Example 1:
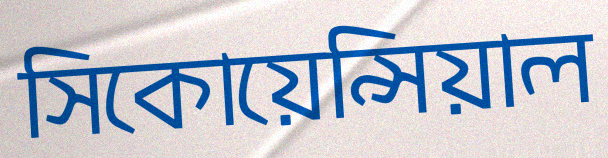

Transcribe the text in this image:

সিকোয়েন্সিয়াল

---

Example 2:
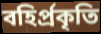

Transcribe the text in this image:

বহির্প্রকৃতি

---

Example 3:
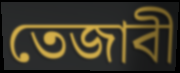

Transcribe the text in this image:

তেজাবী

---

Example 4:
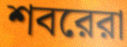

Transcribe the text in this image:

শবরেরা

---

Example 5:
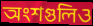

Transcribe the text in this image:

অংশগুলিও